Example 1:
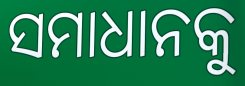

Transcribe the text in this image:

ସମାଧାନକୁ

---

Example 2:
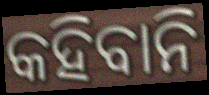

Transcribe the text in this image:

କହିବାନି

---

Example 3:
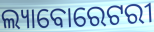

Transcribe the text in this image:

ଲ୍ୟାବୋରେଟରୀ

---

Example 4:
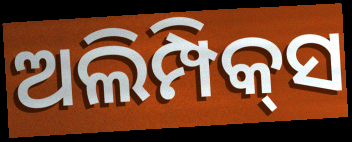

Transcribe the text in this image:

ଅଲିମ୍ପିକ୍‌ସ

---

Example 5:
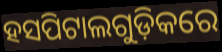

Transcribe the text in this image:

ହସପିଟାଲଗୁଡ଼ିକରେ